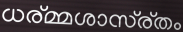
ധര്മ്മശാസ്ര്തം